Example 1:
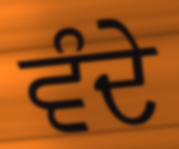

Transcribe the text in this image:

ਵੰਦੇ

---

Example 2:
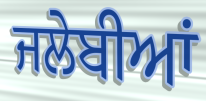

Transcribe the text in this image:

ਜਲੇਬੀਆਂ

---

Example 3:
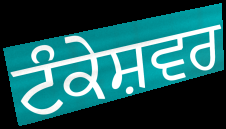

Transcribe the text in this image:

ਟੰਕੇਸ਼ਵਰ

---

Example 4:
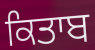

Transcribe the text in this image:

ਕਿਤਾਬ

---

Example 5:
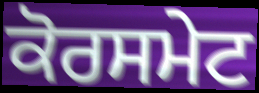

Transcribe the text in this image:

ਕੋਰਸਮੇਟ